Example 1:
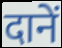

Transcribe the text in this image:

दानें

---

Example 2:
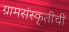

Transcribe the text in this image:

ग्रामसंस्कृतीची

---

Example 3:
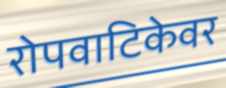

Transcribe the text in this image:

रोपवाटिकेवर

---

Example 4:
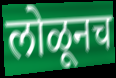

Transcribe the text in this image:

लोळूनच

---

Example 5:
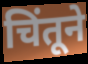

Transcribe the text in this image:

चिंतूने